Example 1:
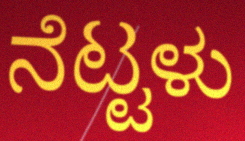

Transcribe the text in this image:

ನೆಟ್ಟಳು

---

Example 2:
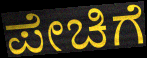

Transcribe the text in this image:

ಪೇಚಿಗೆ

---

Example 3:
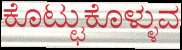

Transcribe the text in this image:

ಕೊಟ್ಟುಕೊಳ್ಳುವ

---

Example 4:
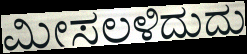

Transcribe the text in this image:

ಮೀಸಲಳಿದುದು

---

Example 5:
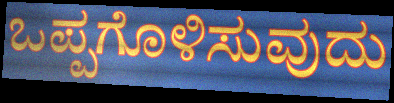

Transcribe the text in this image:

ಒಪ್ಪಗೊಳಿಸುವುದು